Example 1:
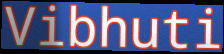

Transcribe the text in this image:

Vibhuti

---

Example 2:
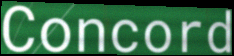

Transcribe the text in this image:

Concord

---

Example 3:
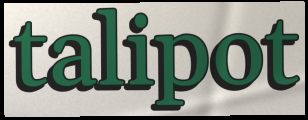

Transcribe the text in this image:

talipot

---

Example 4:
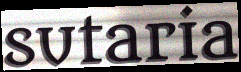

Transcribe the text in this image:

sutaria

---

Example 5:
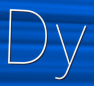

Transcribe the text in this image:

Dy